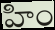
హిం